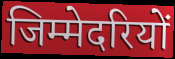
जिम्मेदरियों